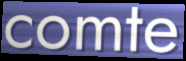
comte